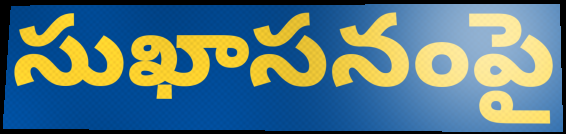
సుఖాసనంపై